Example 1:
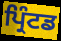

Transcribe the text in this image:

ਪ੍ਰਿੰਟਡ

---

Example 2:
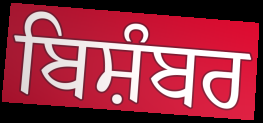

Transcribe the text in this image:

ਬਿਸ਼ੰਬਰ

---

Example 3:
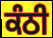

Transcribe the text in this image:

ਕੰਠੀ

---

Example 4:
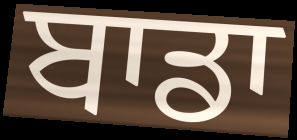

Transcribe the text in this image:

ਬਾਡਾ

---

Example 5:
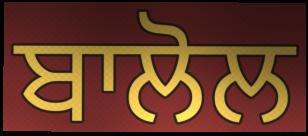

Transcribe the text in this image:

ਬਾਲੋਲ